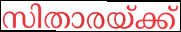
സിതാരയ്ക്ക്